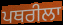
ਪਥਰੀਲਾ